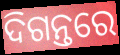
ଦିଗନ୍ତରେ